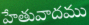
హేతువాదము